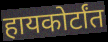
हायकोर्टांत